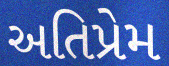
અતિપ્રેમ